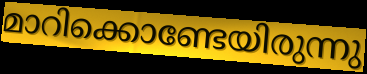
മാറിക്കൊണ്ടേയിരുന്നു